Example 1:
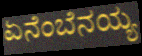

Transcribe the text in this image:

ಏನೆಂಬೆನಯ್ಯ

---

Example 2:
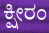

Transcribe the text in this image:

ಕ್ಷೀರಂ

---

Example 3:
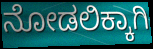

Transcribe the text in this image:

ನೋಡಲಿಕ್ಕಾಗಿ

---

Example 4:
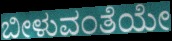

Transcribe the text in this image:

ಬೀಳುವಂತೆಯೇ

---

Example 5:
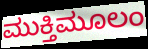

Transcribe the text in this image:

ಮುಕ್ತಿಮೂಲಂ